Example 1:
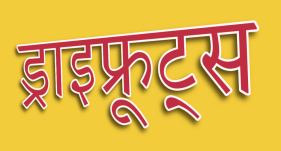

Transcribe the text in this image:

ड्राइफ्रूट्स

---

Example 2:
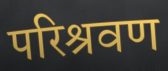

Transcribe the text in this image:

परिश्रवण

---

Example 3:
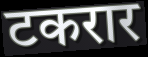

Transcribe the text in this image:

टकरार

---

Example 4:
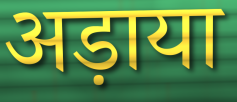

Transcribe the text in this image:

अड़ाया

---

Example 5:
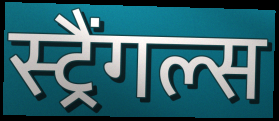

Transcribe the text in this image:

स्ट्रैंगल्स